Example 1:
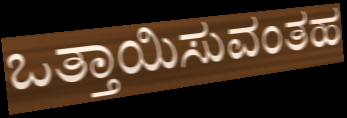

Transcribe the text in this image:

ಒತ್ತಾಯಿಸುವಂತಹ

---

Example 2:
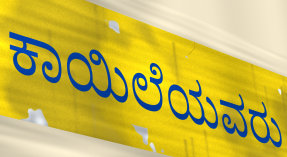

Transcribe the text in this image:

ಕಾಯಿಲೆಯವರು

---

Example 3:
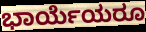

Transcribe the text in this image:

ಭಾರ್ಯೆಯರೂ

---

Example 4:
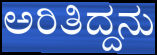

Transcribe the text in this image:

ಅರಿತಿದ್ದನು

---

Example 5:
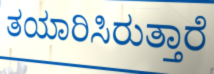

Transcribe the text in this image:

ತಯಾರಿಸಿರುತ್ತಾರೆ